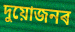
দুয়োজনৰ